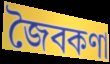
জৈবকণা